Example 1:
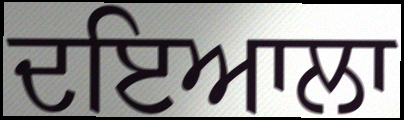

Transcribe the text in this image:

ਦਇਆਲਾ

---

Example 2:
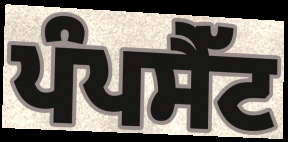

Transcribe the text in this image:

ਪੰਪਸੈੱਟ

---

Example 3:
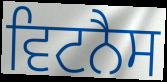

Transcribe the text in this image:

ਵਿਟਨੈਸ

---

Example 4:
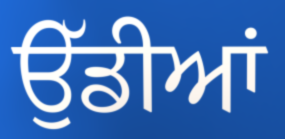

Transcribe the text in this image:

ਉੱਡੀਆਂ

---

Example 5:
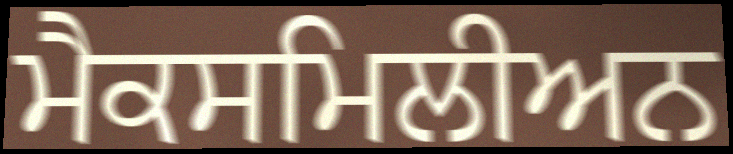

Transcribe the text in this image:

ਮੈਕਸਮਿਲੀਅਨ